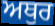
ਅਥੁਰ